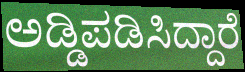
ಅಡ್ಡಿಪಡಿಸಿದ್ದಾರೆ